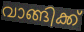
വാങ്ങിക്ക്